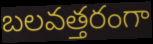
బలవత్తరంగా